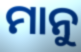
ମାନୁ